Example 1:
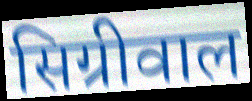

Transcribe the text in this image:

सिग्रीवाल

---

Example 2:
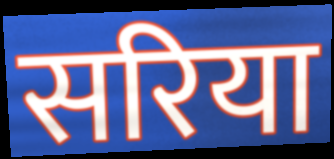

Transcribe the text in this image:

सरिया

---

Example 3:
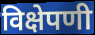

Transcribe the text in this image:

विक्षेपणी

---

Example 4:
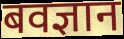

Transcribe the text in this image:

बवज्ञान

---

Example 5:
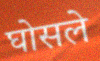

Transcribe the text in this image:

घोसले